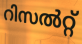
റിസൽറ്റ്